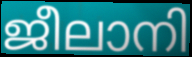
ജീലാനി